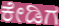
ಕೇಡಿಗ